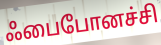
ஃபைபோனச்சி